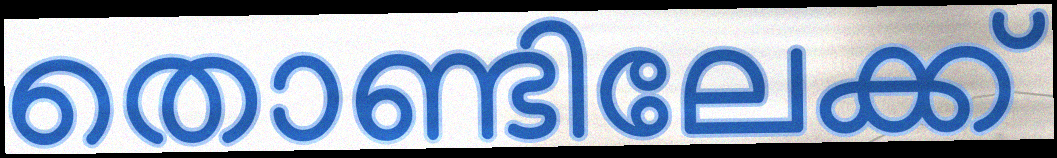
തൊണ്ടിലേക്ക്